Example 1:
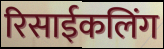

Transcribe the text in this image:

रिसाईकलिंग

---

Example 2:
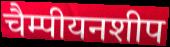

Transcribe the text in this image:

चैम्पीयनशीप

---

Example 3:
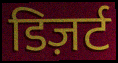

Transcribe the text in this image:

डिज़र्ट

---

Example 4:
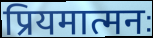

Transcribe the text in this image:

प्रियमात्मनः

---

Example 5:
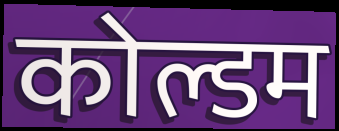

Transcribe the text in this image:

कोल्डम